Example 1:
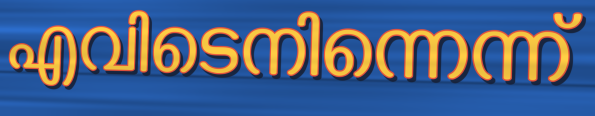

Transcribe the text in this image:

എവിടെനിന്നെന്ന്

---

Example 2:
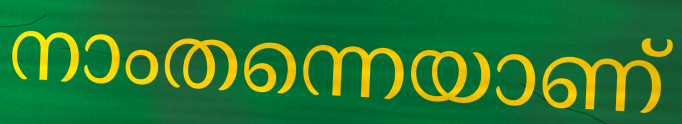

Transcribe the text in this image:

നാംതന്നെയാണ്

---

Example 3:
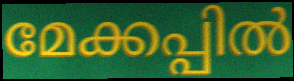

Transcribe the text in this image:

മേക്കപ്പിൽ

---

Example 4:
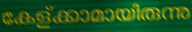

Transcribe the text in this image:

കേള്ക്കാമായിരുന്നു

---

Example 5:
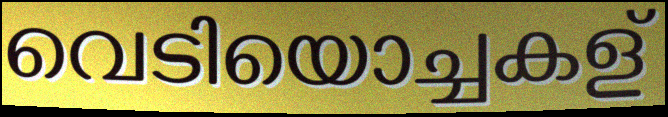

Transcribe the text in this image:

വെടിയൊച്ചകള്